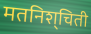
मतनिश्चिती